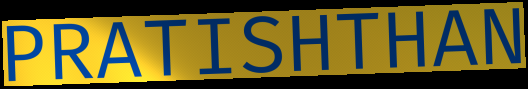
PRATISHTHAN